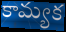
కామ్యక